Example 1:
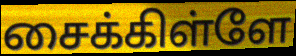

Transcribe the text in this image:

சைக்கிள்ளே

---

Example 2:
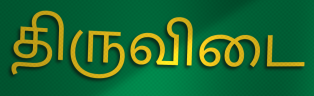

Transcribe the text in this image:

திருவிடை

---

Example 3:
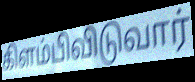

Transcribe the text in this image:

கிளம்பிவிடுவார்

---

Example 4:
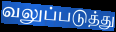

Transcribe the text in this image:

வலுப்படுத்து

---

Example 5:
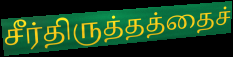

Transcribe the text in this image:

சீர்திருத்தத்தைச்